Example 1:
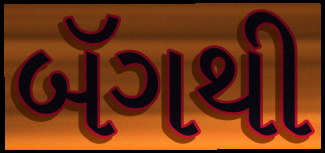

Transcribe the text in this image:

બૅગથી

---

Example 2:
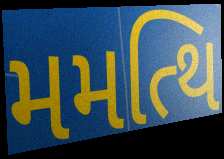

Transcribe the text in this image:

મમત્થિ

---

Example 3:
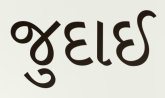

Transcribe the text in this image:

જુદાઈ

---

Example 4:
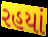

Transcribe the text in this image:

રહયાં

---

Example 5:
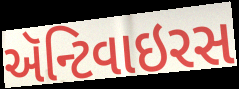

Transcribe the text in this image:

ઍન્ટિવાઇરસ